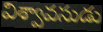
విశ్వావసుడు